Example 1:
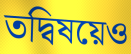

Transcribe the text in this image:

তদ্বিষয়েও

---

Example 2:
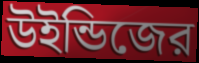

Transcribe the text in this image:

উইন্ডিজের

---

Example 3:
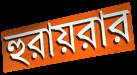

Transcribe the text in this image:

হুরায়রার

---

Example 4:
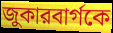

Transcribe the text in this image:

জুকারবার্গকে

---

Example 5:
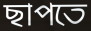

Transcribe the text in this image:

ছাপতে